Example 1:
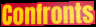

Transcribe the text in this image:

Confronts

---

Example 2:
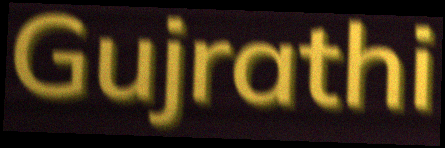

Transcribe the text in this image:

Gujrathi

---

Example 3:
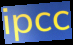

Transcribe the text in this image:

ipcc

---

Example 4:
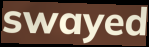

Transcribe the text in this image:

swayed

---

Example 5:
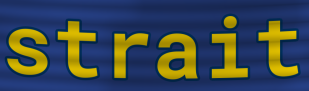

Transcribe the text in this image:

strait